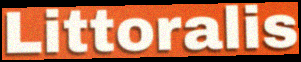
Littoralis